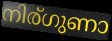
നിര്ഗുണാ